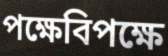
পক্ষেবিপক্ষে